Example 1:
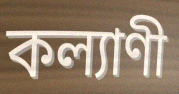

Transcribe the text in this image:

কল্যাণী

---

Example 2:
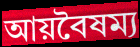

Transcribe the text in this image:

আয়বৈষম্য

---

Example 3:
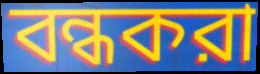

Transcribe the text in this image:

বন্ধকরা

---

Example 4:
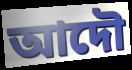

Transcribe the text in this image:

আদৌ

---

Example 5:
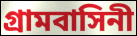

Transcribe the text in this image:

গ্রামবাসিনী